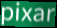
pixar